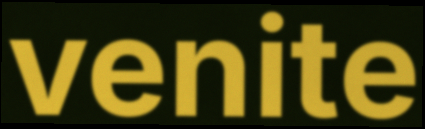
venite